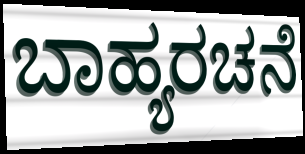
ಬಾಹ್ಯರಚನೆ